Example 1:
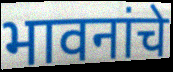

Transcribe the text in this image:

भावनांचे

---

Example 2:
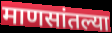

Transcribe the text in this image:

माणसांतल्या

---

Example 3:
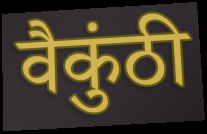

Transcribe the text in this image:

वैकुंठी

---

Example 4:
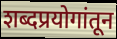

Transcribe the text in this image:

शब्दप्रयोगांतून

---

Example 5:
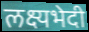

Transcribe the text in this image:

लक्ष्यभेदी